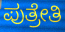
ಪುತ್ರೇತಿ